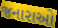
જનારાઓ